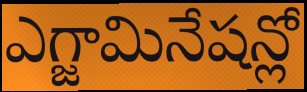
ఎగ్జామినేషన్లో